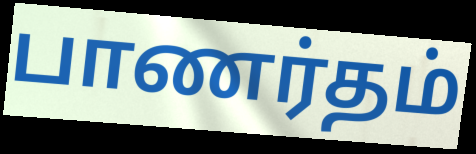
பாணர்தம்